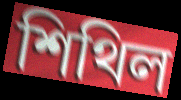
শিথিল